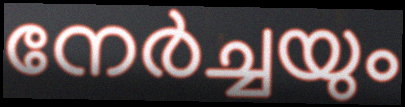
നേർച്ചയും